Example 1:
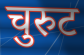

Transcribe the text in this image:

चुरुट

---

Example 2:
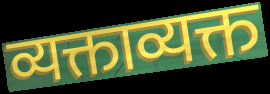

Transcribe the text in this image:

व्यक्ताव्यक्त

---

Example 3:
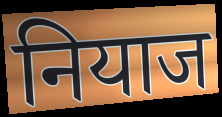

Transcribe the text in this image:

नियाज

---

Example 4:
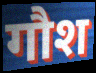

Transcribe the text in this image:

गौश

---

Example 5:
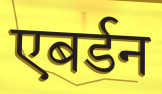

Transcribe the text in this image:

एबर्डन